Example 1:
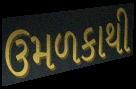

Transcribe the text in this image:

ઉમળકાથી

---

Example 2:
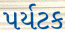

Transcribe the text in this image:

પર્યટક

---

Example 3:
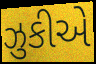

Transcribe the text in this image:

ઝુકીએ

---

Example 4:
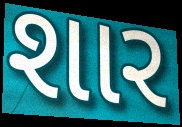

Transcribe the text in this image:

શાર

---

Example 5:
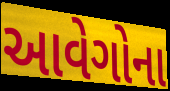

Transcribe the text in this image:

આવેગોના